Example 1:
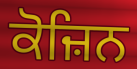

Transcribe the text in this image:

ਕੋਜ਼ਿਨ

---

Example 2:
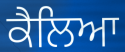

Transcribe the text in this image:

ਕੈਲਿਆ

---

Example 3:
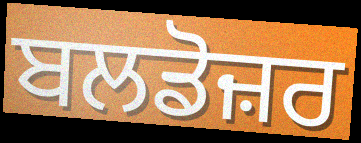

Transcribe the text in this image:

ਬਲਡੋਜ਼ਰ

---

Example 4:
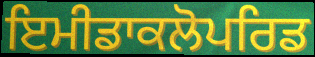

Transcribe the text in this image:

ਇਮੀਡਾਕਲੋਪਰਿਡ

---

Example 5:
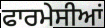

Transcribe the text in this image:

ਫਾਰਮੇਸੀਆਂ